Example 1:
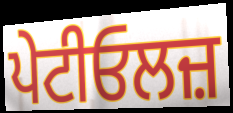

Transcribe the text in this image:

ਪੇਟੀਓਲਜ਼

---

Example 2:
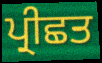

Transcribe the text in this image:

ਪ੍ਰੀਛਤ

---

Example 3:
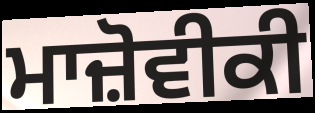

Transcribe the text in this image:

ਮਾਜ਼ੋਵੀਕੀ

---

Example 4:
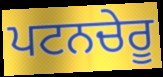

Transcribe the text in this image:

ਪਟਨਚੇਰੂ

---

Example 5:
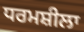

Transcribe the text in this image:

ਧਰਮਸ਼ੀਲਾ